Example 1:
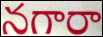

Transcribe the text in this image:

నగారా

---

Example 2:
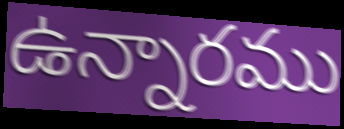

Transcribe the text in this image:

ఉన్నారము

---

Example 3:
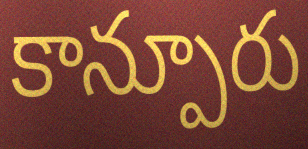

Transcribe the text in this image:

కాన్పూరు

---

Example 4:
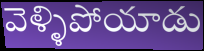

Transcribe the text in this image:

వెళ్ళిపోయాడు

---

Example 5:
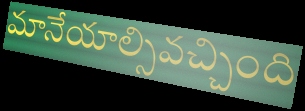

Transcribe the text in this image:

మానేయాల్సివచ్చింది